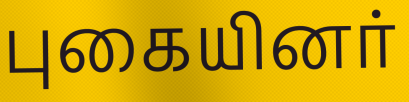
புகையினர்